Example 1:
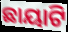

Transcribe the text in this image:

ଛାୟାଟି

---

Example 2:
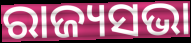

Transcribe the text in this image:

ରାଜ୍ୟସଭା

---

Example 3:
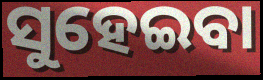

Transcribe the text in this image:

ସୁହେଇବା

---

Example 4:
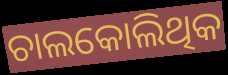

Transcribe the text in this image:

ଚାଲକୋଲିଥିକ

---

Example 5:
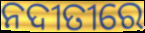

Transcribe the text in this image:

ନଦୀତୀରେ